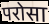
परोसा